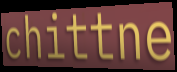
chittne